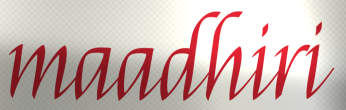
maadhiri